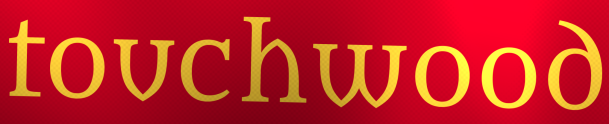
touchwood